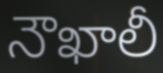
నౌఖాలీ